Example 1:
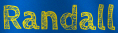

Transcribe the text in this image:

Randall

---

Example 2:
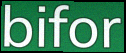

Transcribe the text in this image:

bifor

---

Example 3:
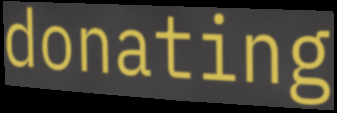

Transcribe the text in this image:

donating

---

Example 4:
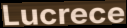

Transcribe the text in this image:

Lucrece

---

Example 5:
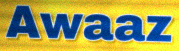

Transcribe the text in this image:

Awaaz